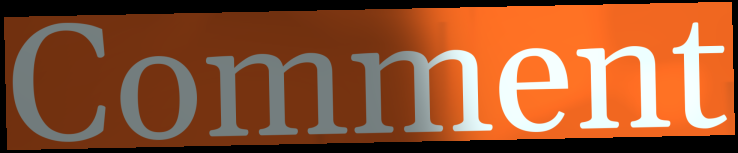
Comment